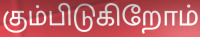
கும்பிடுகிறோம்